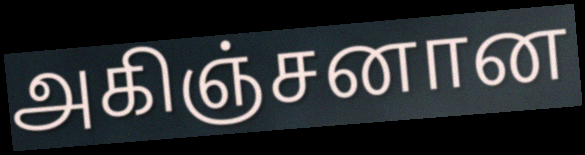
அகிஞ்சனான